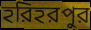
হরিহরপুর